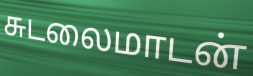
சுடலைமாடன்